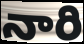
నారి